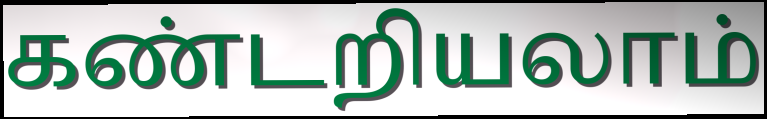
கண்டறியலாம்